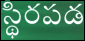
స్థిరపడ